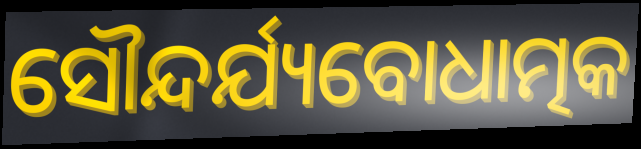
ସୌନ୍ଦର୍ଯ୍ୟବୋଧାତ୍ମକ